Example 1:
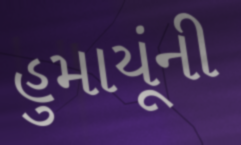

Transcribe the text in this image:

હુમાયૂંની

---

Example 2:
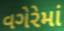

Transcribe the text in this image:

વગેરેમાં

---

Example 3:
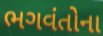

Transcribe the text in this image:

ભગવંતોના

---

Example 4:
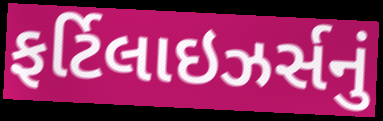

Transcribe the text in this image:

ફર્ટિલાઇઝર્સનું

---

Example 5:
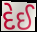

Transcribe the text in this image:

દેઈ